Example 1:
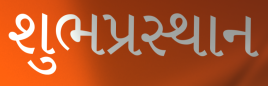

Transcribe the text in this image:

શુભપ્રસ્થાન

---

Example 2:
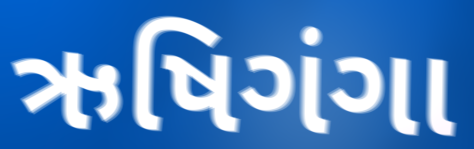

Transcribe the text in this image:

ઋષિગંગા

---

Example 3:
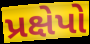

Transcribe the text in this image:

પ્રક્ષેપો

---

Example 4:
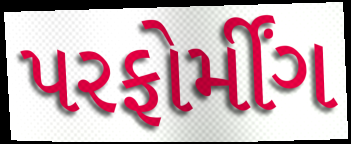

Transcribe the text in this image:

પરફોર્મીંગ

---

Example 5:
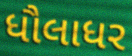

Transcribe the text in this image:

ધૌલાધર